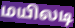
மயிலடி